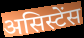
असिस्टेंस